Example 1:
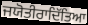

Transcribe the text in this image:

ਜਯੋਤੀਰਾਦਿੱਤਿਆ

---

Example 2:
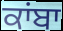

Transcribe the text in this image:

ਕਾਂਬਾ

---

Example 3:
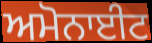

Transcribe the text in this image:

ਅਮੋਨਾਈਟ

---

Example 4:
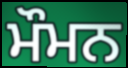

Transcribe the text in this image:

ਮੌਮਨ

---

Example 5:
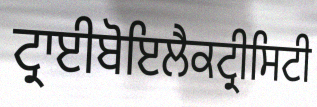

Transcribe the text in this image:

ਟ੍ਰਾਈਬੋਇਲੈਕਟ੍ਰੀਸਿਟੀ